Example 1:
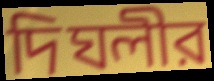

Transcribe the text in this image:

দিঘলীর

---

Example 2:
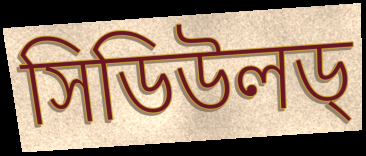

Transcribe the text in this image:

সিডিউলড্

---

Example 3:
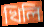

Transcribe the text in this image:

খিলি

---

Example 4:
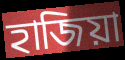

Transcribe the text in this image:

হাজিয়া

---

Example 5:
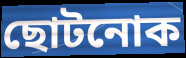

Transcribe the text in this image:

ছোটনোক